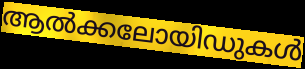
ആൽക്കലോയിഡുകൾ